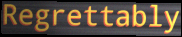
Regrettably